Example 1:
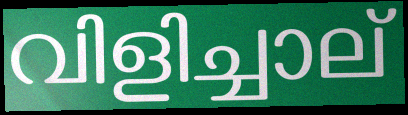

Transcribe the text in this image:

വിളിച്ചാല്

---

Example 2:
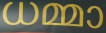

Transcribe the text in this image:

ധമ്മാ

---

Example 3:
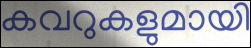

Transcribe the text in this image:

കവറുകളുമായി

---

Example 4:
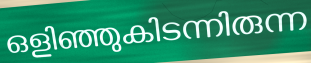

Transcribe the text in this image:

ഒളിഞ്ഞുകിടന്നിരുന്ന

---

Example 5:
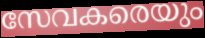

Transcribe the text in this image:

സേവകരെയും